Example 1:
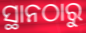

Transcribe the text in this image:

ସ୍ଥାନଠାରୁ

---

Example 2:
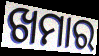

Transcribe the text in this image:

ଖମାର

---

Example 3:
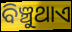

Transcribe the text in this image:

ବିଞ୍ଚୁଥାଏ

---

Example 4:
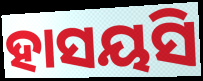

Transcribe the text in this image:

ହାସୟସି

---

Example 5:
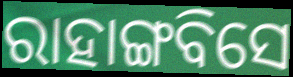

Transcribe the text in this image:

ରାହାଙ୍ଗବିସେ